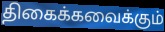
திகைக்கவைக்கும்